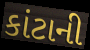
કાંટાની